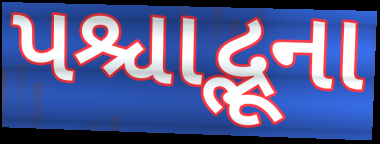
પશ્ચાદ્ભૂના